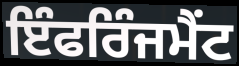
ਇੰਫਰਿੰਜਮੈਂਟ